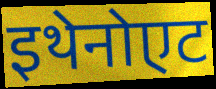
इथेनोएट